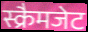
स्‍क्रैमजेट